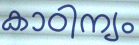
കാഠിന്യം